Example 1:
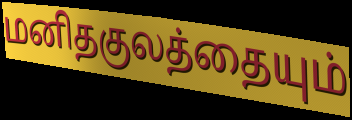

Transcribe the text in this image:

மனிதகுலத்தையும்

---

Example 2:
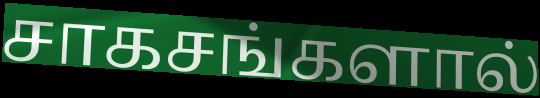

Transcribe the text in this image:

சாகசங்களால்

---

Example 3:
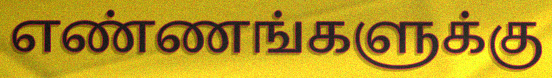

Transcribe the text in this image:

எண்ணங்களுக்கு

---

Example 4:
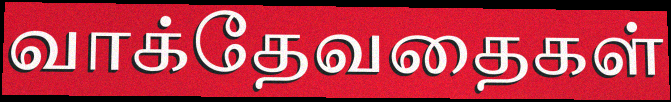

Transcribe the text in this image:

வாக்தேவதைகள்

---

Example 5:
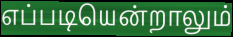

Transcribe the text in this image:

எப்படியென்றாலும்